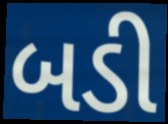
બડી